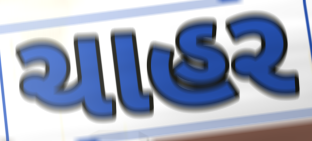
ચાહર